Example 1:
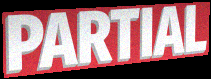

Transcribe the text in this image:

PARTIAL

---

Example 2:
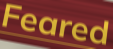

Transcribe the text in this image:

Feared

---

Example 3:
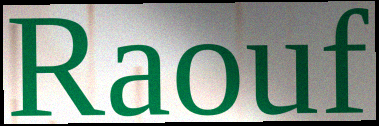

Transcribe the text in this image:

Raouf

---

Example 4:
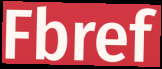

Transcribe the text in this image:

Fbref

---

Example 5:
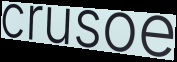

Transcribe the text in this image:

crusoe